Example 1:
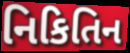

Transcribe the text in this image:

નિકિતિન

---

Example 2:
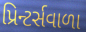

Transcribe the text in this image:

પ્રિન્ટર્સવાળા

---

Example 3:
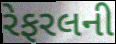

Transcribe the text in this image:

રેફરલની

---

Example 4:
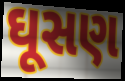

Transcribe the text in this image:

ઘૂસણ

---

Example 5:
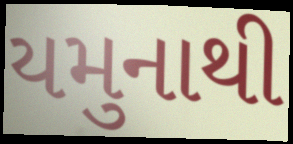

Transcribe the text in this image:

યમુનાથી